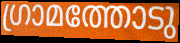
ഗ്രാമത്തോടു